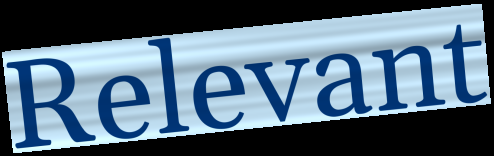
Relevant